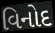
વિનોદ